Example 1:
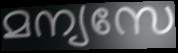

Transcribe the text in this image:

മന്യസേ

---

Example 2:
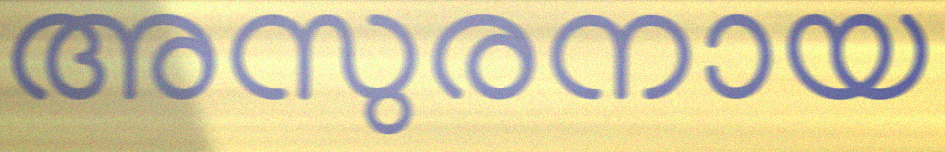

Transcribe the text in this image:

അസുരനായ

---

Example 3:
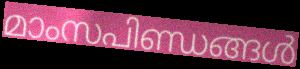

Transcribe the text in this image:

മാംസപിണ്ഡങ്ങൾ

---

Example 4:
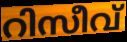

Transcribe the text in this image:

റിസീവ്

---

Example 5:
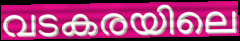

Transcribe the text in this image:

വടകരയിലെ